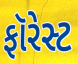
ફૉરેસ્ટ